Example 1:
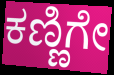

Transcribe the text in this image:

ಕಣ್ಣಿಗೇ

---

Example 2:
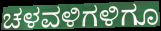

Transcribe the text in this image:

ಚಳವಳಿಗಳಿಗೂ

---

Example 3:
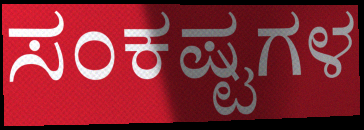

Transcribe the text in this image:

ಸಂಕಷ್ಟಗಳ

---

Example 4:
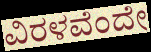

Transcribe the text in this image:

ವಿರಳವೆಂದೇ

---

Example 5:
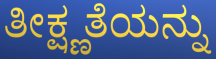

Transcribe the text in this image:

ತೀಕ್ಷ್ಣತೆಯನ್ನು